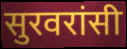
सुरवरांसी